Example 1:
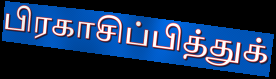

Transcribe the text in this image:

பிரகாசிப்பித்துக்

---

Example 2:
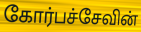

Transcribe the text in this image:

கோர்பச்சேவின்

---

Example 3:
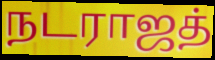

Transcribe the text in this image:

நடராஜத்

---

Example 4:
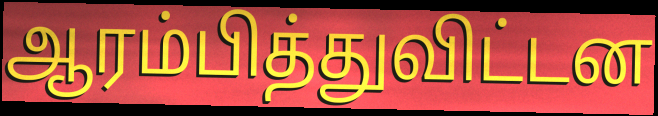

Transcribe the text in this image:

ஆரம்பித்துவிட்டன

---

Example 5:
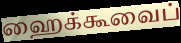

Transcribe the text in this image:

ஹைக்கூவைப்